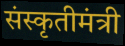
संस्कृतीमंत्री